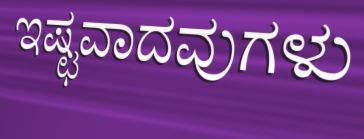
ಇಷ್ಟವಾದವುಗಳು